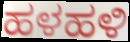
ಹಳಹಳಿ